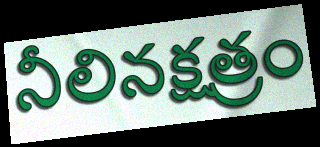
నీలినక్షత్రం